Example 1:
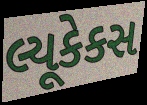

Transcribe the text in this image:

લ્યૂકેકસ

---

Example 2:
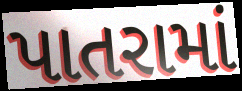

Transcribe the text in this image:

પાતરામાં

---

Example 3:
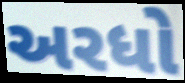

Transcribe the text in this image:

અરધો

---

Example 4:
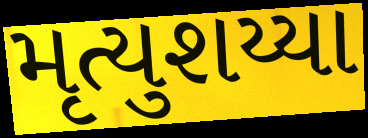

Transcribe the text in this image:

મૃત્યુશય્યા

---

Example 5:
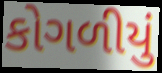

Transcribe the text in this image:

કોગળીયું